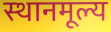
स्थानमूल्य